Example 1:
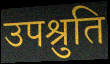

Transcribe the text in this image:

उपश्रुति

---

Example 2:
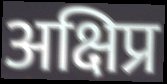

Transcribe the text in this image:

अक्षिप्र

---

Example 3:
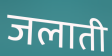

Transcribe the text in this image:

जलाती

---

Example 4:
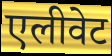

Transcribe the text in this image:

एलीवेट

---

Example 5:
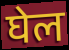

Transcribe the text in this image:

घेल